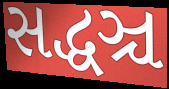
સદ્ધઞ્ચ